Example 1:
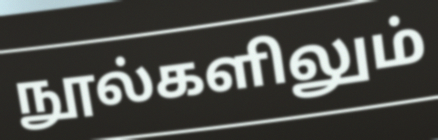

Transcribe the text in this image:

நூல்களிலும்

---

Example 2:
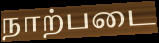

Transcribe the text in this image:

நாற்படை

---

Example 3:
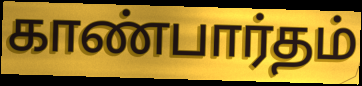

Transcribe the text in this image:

காண்பார்தம்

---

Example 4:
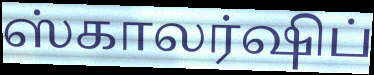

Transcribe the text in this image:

ஸ்காலர்ஷிப்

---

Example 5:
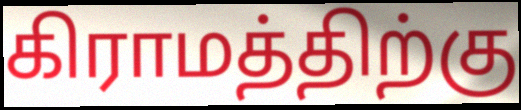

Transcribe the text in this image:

கிராமத்திற்கு